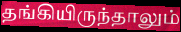
தங்கியிருந்தாலும்